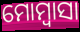
ମୋମ୍ବାସା